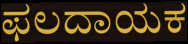
ಫಲದಾಯಕ